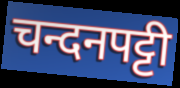
चन्दनपट्टी